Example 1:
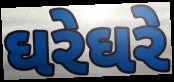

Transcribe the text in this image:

ઘરેઘરે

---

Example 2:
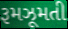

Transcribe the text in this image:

રૂમઝૂમતી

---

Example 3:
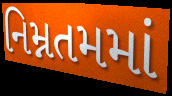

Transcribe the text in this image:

નિમ્નતમમાં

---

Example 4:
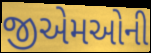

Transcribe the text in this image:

જીએમઓની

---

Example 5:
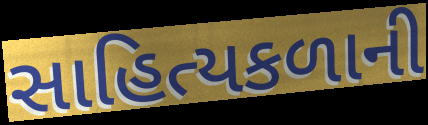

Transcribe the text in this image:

સાહિત્યકળાની